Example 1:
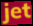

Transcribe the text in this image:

jet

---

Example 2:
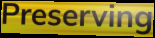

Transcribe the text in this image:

Preserving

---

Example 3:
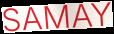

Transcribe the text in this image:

SAMAY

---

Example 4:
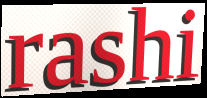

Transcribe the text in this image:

rashi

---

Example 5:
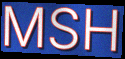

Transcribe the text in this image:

MSH